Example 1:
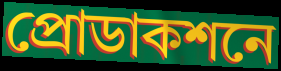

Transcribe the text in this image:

প্রোডাকশনে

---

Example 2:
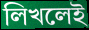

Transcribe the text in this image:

লিখলেই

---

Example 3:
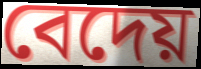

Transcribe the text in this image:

বেদেয়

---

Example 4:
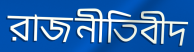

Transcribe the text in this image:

রাজনীতিবীদ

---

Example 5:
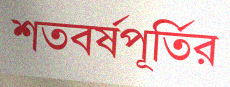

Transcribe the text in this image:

শতবর্ষপূর্তির